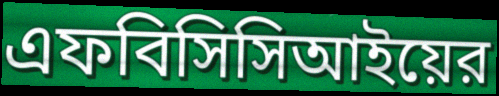
এফবিসিসিআইয়ের